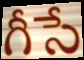
గీసే